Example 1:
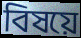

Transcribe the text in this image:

বিষয়ে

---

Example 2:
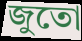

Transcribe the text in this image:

জুতো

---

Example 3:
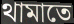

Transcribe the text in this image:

থামাতে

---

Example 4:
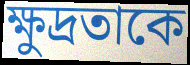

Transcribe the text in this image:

ক্ষুদ্রতাকে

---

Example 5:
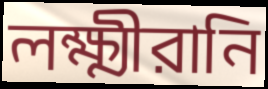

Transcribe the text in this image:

লক্ষ্মীরানি